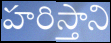
హరిస్తాని